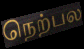
நெற்பல